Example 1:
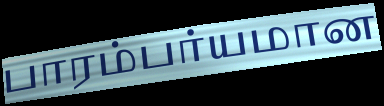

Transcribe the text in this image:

பாரம்பர்யமான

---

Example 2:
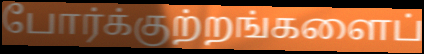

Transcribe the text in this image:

போர்க்குற்றங்களைப்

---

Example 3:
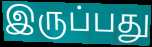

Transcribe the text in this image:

இருப்பது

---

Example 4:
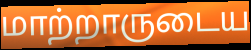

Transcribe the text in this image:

மாற்றாருடைய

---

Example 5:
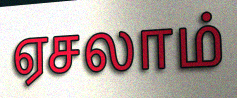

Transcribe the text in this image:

ஏசலாம்